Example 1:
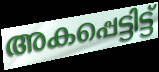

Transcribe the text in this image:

അകപ്പെട്ടിട്ട്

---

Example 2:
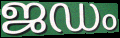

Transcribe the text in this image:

ജഡം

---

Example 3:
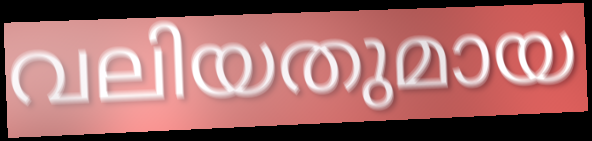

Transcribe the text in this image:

വലിയതുമായ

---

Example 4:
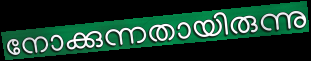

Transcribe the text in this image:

നോക്കുന്നതായിരുന്നു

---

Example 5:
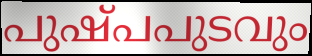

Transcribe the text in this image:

പുഷ്പപുടവും